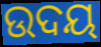
ଉଦୟ